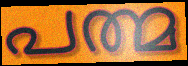
പത്മ